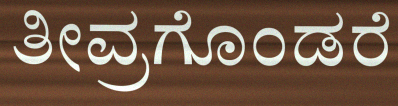
ತೀವ್ರಗೊಂಡರೆ